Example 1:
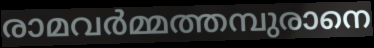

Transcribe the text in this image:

രാമവർമ്മത്തമ്പുരാനെ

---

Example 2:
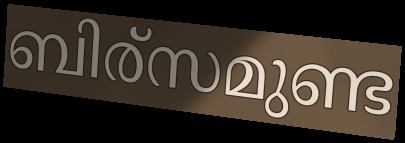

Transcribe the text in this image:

ബിര്സമുണ്ട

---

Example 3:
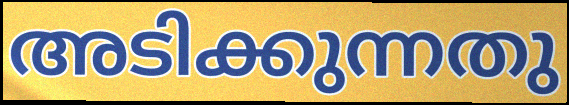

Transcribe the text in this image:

അടിക്കുന്നതു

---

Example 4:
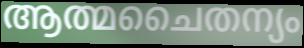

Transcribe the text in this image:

ആത്മചൈതന്യം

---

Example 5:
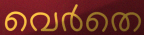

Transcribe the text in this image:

വെർതെ